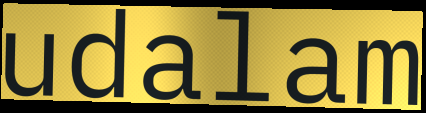
udalam